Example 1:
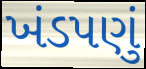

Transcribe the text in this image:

ખંડપણું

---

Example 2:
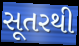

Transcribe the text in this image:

સૂતરથી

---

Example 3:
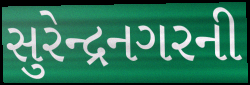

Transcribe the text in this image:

સુરેન્દ્રનગરની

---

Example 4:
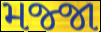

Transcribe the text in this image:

મજ્જા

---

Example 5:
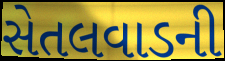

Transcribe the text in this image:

સેતલવાડની